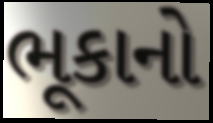
ભૂકાનો